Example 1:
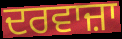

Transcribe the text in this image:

ਦਰਵਾਜ਼ਾ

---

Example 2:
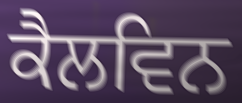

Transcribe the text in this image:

ਕੈਲਵਿਨ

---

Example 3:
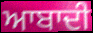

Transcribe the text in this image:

ਆਬਾਦੀ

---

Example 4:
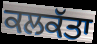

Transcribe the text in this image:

ਕਲਕੱਤਾ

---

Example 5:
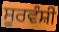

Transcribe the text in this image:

ਸੂਰਵੰਸ਼ੀ